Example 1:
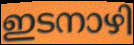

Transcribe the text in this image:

ഇടനാഴി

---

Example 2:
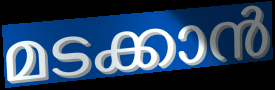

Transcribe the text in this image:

മടക്കാൻ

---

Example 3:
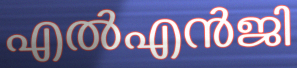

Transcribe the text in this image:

എൽഎൻജി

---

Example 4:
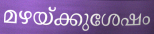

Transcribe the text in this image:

മഴയ്ക്കുശേഷം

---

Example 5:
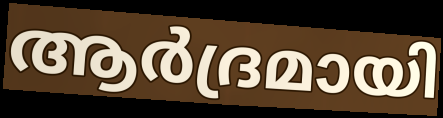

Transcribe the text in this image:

ആർദ്രമായി